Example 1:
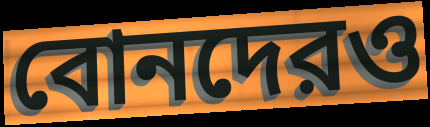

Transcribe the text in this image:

বোনদেরও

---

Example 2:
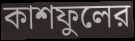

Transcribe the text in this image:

কাশফুলের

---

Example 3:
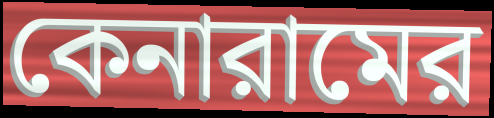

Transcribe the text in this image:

কেনারামের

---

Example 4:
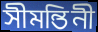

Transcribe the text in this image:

সীমন্তিনী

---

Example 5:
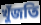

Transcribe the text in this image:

খুঁজতি